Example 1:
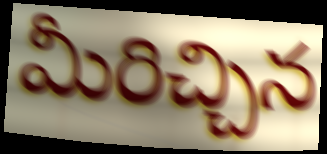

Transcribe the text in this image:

మీరిచ్చిన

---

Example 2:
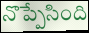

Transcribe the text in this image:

నొప్పేసింది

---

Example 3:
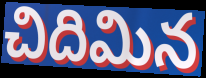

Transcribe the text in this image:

చిదిమిన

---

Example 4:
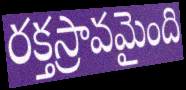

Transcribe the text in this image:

రక్తస్రావమైంది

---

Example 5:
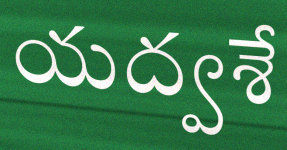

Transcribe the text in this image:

యద్వశే